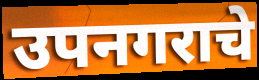
उपनगराचे